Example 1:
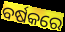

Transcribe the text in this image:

ବର୍ଷକରେ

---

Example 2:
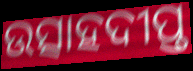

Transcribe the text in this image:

ଉତ୍ସାହଦୀପ୍ତ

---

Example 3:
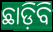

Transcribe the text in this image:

ଛାଡ଼ିବି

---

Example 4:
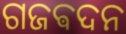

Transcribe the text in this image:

ଗଜଵଦନ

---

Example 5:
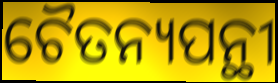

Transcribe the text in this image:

ଚୈତନ୍ୟପନ୍ଥୀ